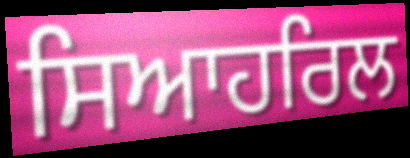
ਸਿਆਹਰਿਲ